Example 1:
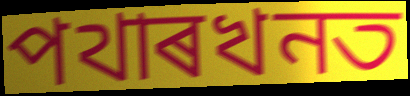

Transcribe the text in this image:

পথাৰখনত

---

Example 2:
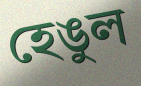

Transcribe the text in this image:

হেঙুল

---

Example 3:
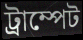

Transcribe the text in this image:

ট্ৰাম্পেট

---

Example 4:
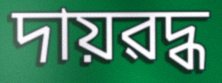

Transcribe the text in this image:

দায়ৱদ্ধ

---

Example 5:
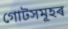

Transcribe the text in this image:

গোটসমূহৰ